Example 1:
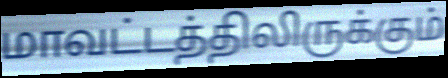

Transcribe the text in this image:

மாவட்டத்திலிருக்கும்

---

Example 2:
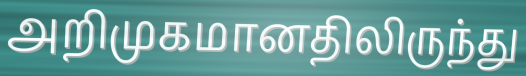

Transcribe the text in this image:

அறிமுகமானதிலிருந்து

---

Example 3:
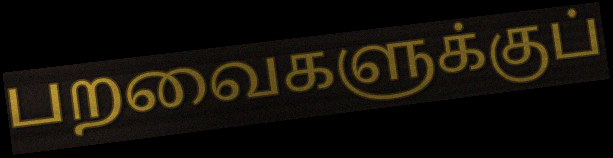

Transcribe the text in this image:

பறவைகளுக்குப்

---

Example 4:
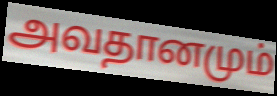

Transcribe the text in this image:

அவதானமும்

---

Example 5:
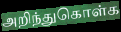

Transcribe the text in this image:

அறிந்துகொள்க